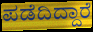
ಪಡೆದಿದ್ದಾರೆ